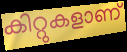
കിറ്റുകളാണ്